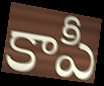
కాపీ